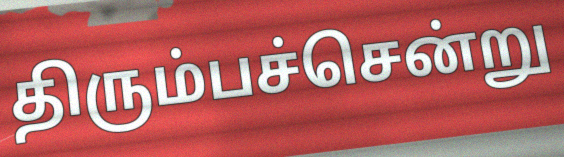
திரும்பச்சென்று